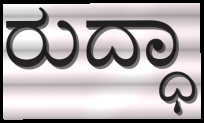
ರುದ್ಧಾ